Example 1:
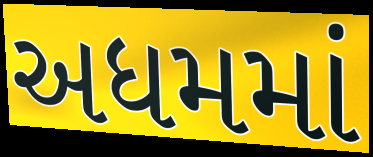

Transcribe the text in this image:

અધમમાં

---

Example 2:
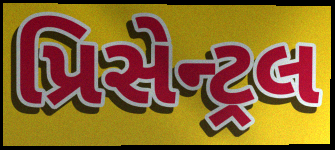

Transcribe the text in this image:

પ્રિસેન્ટ્રલ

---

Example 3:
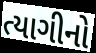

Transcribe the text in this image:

ત્યાગીનો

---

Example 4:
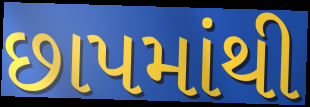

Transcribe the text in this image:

છાપમાંથી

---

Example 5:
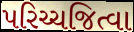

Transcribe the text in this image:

પરિચ્ચજિત્વા